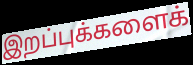
இறப்புக்களைக்